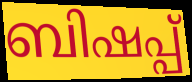
ബിഷപ്പ്